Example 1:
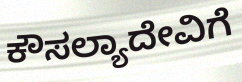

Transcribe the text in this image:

ಕೌಸಲ್ಯಾದೇವಿಗೆ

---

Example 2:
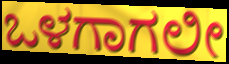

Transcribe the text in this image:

ಒಳಗಾಗಲೀ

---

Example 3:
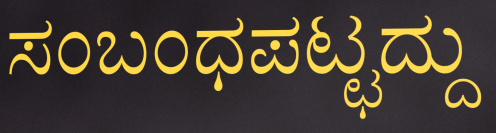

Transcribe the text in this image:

ಸಂಬಂಧಪಟ್ಟದ್ದು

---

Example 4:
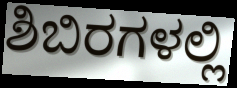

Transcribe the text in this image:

ಶಿಬಿರಗಳಲ್ಲಿ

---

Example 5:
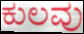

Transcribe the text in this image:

ಕುಲವು